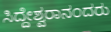
ಸಿದ್ದೇಶ್ವರಾನಂದರು